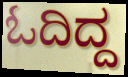
ಓದಿದ್ದ